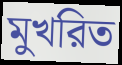
মুখরিত